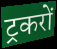
ट्रकरों